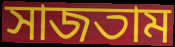
সাজতাম